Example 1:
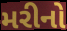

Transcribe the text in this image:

મરીનો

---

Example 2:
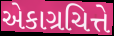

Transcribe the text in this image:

એકાગ્રચિત્તે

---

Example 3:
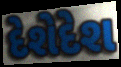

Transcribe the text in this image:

દેશેદેશ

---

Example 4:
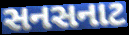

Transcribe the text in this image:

સનસનાટ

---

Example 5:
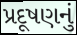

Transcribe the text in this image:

પ્રદૂષણનું